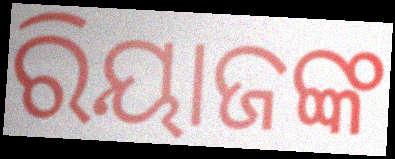
ରିୟାଜଙ୍କ